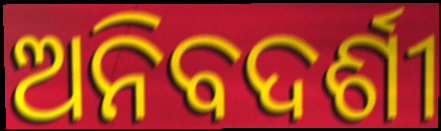
ଅନିବଦର୍ଶୀ